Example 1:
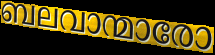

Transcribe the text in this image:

ബലവാന്മാരോ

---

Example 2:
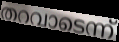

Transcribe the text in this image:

തറവാടെന്ന്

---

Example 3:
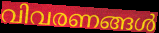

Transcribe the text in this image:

വിവരണങ്ങൾ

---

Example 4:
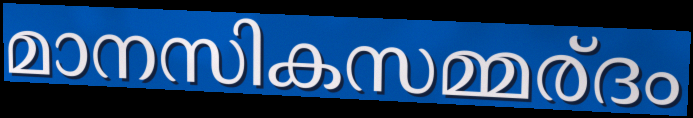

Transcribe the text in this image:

മാനസികസമ്മര്ദം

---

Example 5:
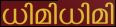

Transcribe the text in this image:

ധിമിധിമി